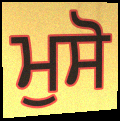
ਮੁਸੋ